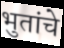
भुतांचे